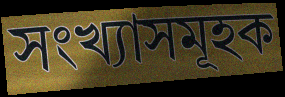
সংখ্যাসমূহক